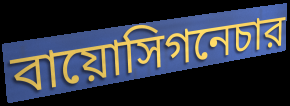
বায়োসিগনেচার